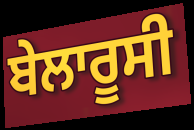
ਬੇਲਾਰੂਸੀ